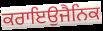
ਕਰਾਇਉਜੈਨਿਕ